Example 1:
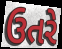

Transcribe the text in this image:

ઉતરે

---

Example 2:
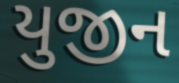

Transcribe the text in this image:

યુજીન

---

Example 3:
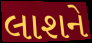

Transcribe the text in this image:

લાશને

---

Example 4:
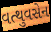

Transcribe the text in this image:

વત્થુવસેન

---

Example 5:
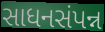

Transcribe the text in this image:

સાધનસંપન્ન